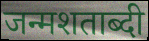
जन्मशताब्दी